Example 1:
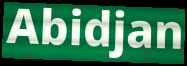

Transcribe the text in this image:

Abidjan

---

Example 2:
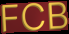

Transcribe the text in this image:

FCB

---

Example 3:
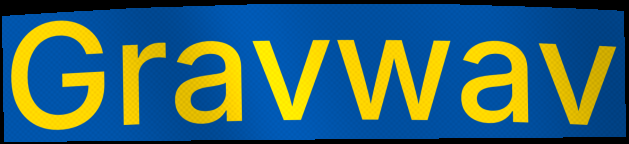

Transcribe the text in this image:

Gravwav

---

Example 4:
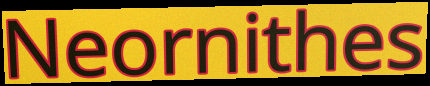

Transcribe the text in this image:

Neornithes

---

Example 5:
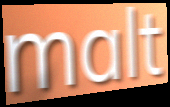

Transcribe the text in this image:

malt